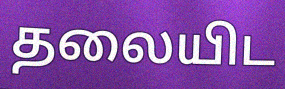
தலையிட